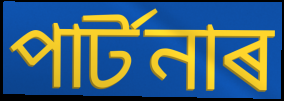
পাৰ্টনাৰ